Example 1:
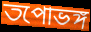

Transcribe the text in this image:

তপোভঙ্গ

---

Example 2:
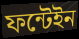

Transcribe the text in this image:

ফন্টেইন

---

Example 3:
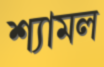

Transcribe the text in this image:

শ্যামল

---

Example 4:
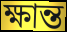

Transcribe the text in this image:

ক্ষান্ত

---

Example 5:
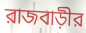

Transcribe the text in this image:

রাজবাড়ীর